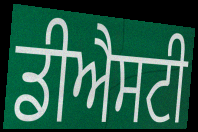
ਡੀਐਸਟੀ